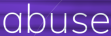
abuse